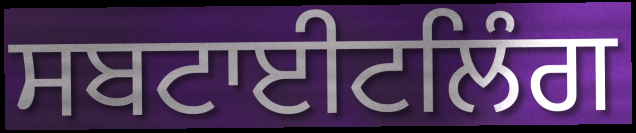
ਸਬਟਾਈਟਲਿੰਗ